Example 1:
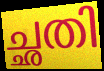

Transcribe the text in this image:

ച്ഛതി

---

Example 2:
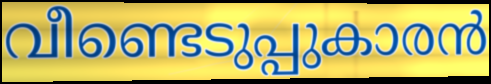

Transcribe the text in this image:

വീണ്ടെടുപ്പുകാരൻ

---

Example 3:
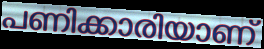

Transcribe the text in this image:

പണിക്കാരിയാണ്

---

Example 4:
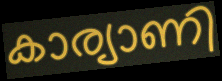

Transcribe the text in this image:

കാര്യാണി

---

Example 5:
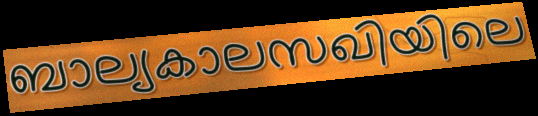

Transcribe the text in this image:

ബാല്യകാലസഖിയിലെ